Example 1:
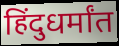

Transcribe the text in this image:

हिंदुधर्मांत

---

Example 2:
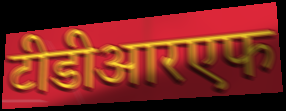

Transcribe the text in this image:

टीडीआरएफ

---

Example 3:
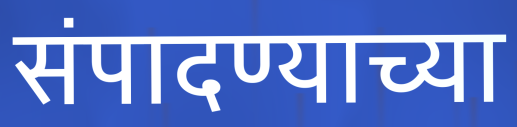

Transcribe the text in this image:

संपादण्याच्या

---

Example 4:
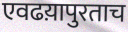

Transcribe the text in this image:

एवढय़ापुरताच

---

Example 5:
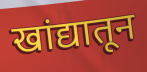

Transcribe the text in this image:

खांद्यातून